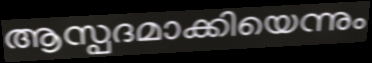
ആസ്പദമാക്കിയെന്നും